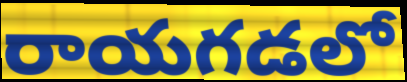
రాయగడలో